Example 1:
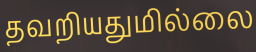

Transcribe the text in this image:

தவறியதுமில்லை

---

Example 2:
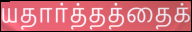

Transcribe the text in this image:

யதார்த்தத்தைக்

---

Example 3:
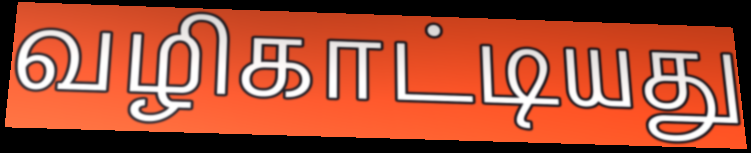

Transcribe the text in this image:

வழிகாட்டியது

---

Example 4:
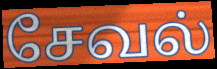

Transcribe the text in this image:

சேவல்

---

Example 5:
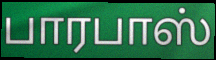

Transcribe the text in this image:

பாரபாஸ்